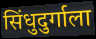
सिंधुदुर्गाला